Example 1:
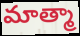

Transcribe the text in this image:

మాత్మా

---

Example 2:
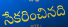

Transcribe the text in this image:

సేకరించినది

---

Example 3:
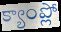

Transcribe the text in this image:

క్యాంప్లో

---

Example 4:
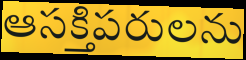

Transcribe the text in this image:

ఆసక్తిపరులను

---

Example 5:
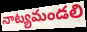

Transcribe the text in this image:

నాట్యమండలి